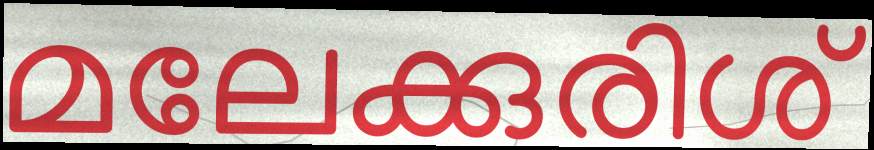
മലേക്കുരിശ്